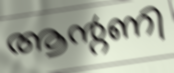
ആന്റണി